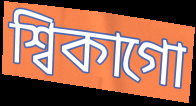
শ্বিকাগো